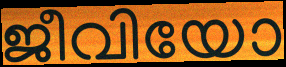
ജീവിയോ